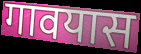
गावयास